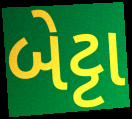
બેટ્ટા